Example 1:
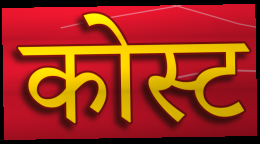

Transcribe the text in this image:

कोस्ट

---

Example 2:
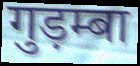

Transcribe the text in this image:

गुड़म्बा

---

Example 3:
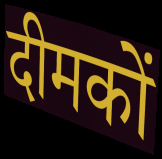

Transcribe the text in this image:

दीमकों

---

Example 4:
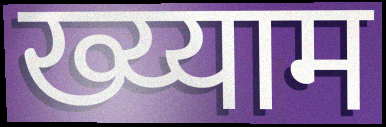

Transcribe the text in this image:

ख्य्याम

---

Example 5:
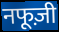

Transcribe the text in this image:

नफूज़ी